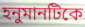
হনুমানটিকে